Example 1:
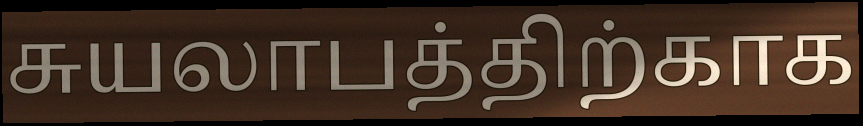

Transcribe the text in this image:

சுயலாபத்திற்காக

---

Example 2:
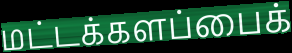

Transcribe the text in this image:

மட்டக்களப்பைக்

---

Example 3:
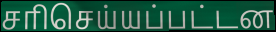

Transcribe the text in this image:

சரிசெய்யப்பட்டன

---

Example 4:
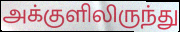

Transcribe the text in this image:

அக்குளிலிருந்து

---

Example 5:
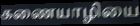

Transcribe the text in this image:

கணையாழியை